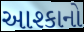
આશ્કાનો